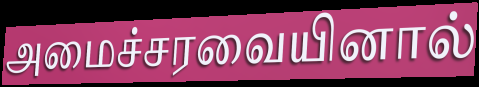
அமைச்சரவையினால்